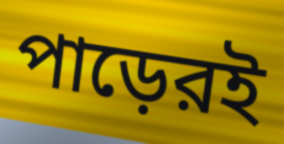
পাড়েরই